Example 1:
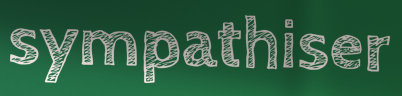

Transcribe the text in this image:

sympathiser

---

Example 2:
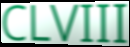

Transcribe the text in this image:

CLVIII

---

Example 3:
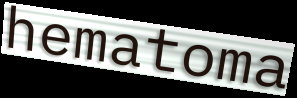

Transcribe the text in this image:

hematoma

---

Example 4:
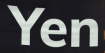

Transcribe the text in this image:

Yen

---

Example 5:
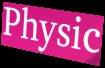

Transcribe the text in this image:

Physic